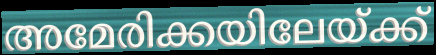
അമേരിക്കയിലേയ്ക്ക്